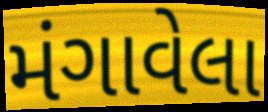
મંગાવેલા